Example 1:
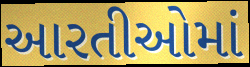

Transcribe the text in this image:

આરતીઓમાં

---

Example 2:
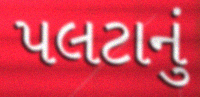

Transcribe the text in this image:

પલટાનું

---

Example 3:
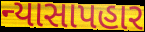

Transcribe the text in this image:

ન્યાસાપહાર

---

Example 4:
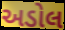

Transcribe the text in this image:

અડોલ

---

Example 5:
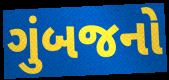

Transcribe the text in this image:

ગુંબજનો